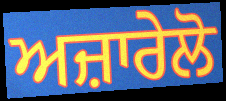
ਅਜ਼ਾਰੇਲੋ